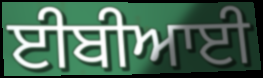
ਈਬੀਆਈ